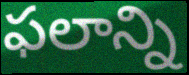
ఫలాన్ని